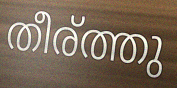
തീര്ത്തു